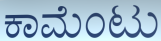
ಕಾಮೆಂಟು